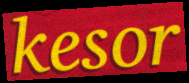
kesor